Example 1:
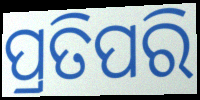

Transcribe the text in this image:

ପ୍ରତିପରି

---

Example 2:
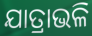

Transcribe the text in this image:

ଯାତ୍ରାଭଳି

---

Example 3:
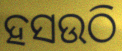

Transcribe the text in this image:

ହସଉଠି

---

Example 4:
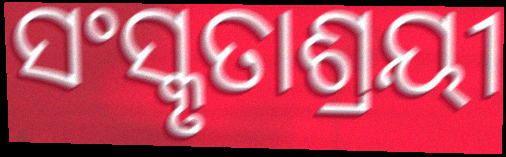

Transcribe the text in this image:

ସଂସ୍କୃତାଶ୍ରୟୀ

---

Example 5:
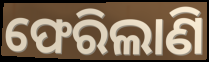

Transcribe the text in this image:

ଫେରିଲାଣି